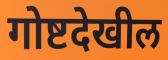
गोष्टदेखील